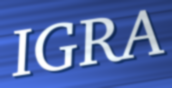
IGRA